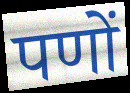
पणों